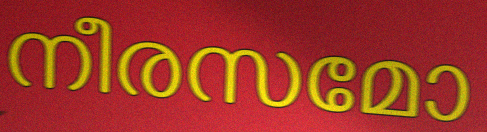
നീരസമോ